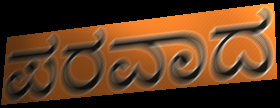
ಪರವಾದ